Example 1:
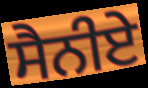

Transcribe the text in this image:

ਸੈਨੀਏ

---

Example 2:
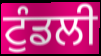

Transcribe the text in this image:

ਟੁੰਡਲੀ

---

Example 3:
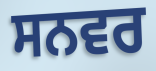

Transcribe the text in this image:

ਸਨਵਰ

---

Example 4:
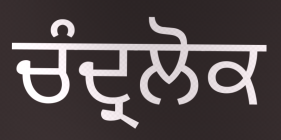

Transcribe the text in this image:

ਚੰਦ੍ਰਲੋਕ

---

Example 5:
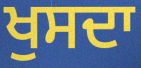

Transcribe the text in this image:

ਖੁਸਦਾ